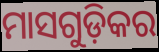
ମାସଗୁଡ଼ିକର